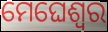
ମେଘେଶ୍ୱର